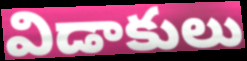
విడాకులు